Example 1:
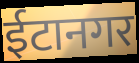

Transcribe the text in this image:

ईटानगर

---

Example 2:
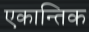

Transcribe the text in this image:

एकान्तिक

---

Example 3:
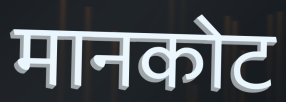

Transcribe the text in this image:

मानकोट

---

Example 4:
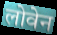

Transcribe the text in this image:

लोवेन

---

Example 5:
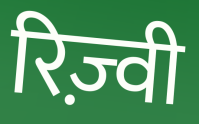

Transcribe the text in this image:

रिज़्वी